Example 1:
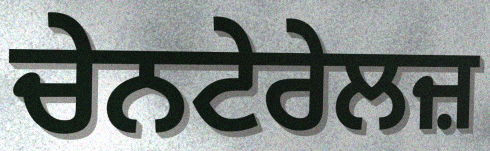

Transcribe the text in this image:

ਚੇਨਟੇਰੇਲਜ਼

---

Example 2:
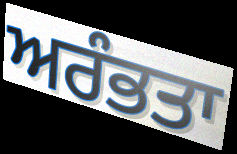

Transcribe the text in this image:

ਅਰੰਭਤਾ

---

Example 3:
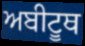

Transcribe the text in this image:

ਅਬੀਟੂਥ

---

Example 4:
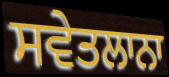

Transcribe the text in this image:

ਸਵੇਤਲਾਨਾ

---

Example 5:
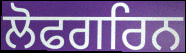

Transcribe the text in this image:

ਲੋਫਗਰਿਨ